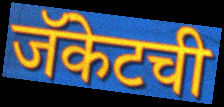
जॅकेटची